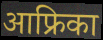
आफ्रिका